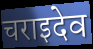
चराइदेव